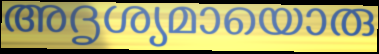
അദൃശ്യമായൊരു